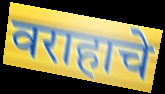
वराहाचे